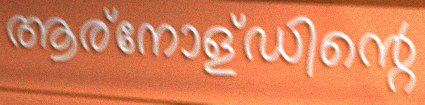
ആര്നോള്ഡിന്റെ